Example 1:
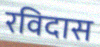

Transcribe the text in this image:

रविदास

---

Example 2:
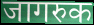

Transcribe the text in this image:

जागरुक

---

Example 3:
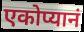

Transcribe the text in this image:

एकोप्यानं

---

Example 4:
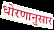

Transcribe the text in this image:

धोरणानुसार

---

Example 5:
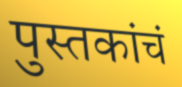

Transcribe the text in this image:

पुस्तकांचं